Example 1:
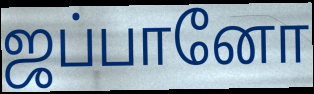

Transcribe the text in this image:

ஜப்பானோ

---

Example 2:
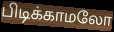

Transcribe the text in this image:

பிடிக்காமலோ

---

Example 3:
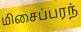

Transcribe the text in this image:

மிசைப்பரந்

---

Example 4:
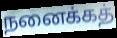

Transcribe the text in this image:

நனைக்கத்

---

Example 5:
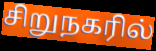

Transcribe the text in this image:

சிறுநகரில்